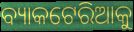
ବ୍ୟାକଟେରିଆକୁ